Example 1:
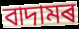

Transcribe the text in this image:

বাদামৰ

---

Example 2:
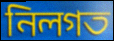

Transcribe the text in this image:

নিলগত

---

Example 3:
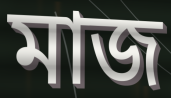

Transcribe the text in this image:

মাজ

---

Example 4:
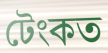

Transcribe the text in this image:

টেংকত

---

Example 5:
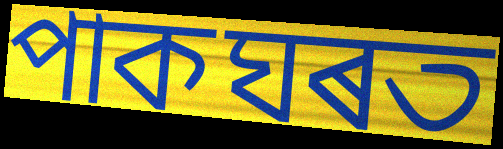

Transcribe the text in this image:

পাকঘৰত